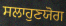
ਸਲਾਹੁਣਯੋਗ